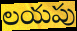
లయపు